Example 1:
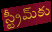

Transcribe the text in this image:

స్ట్రీమ్‌కు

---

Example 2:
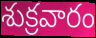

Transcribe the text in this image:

శుక్రవారం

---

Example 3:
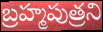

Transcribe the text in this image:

బ్రహ్మపుత్రని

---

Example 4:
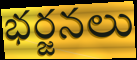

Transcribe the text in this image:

భర్జనలు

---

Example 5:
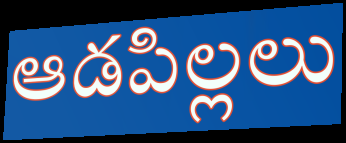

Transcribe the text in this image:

ఆడపిల్లలు